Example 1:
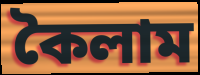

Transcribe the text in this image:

কৈলাম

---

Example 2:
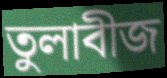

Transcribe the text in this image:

তুলাবীজ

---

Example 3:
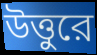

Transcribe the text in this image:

উত্তুরে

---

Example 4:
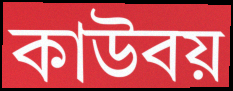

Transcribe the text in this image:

কাউবয়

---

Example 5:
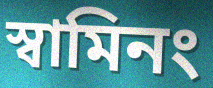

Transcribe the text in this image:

স্বামিনং